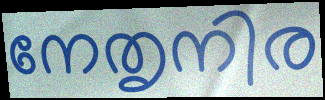
നേതൃനിര